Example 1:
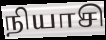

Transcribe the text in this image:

நியாசி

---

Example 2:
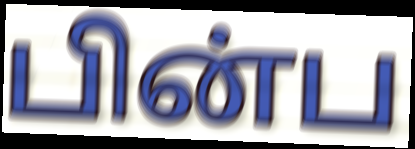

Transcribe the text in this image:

பின்ப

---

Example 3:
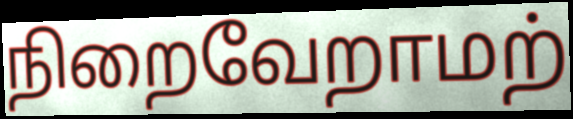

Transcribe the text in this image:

நிறைவேறாமற்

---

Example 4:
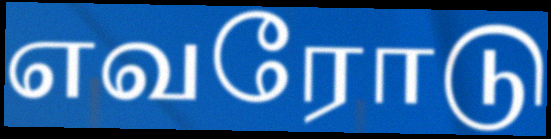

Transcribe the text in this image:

எவரோடு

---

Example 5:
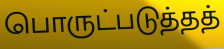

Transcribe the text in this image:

பொருட்படுத்தத்